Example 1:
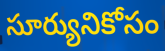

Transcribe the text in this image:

సూర్యునికోసం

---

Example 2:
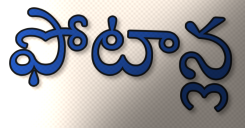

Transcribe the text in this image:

ఫోటాన్ల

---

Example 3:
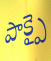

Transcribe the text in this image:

పాక్పై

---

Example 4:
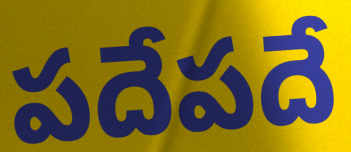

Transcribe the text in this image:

పదేపదే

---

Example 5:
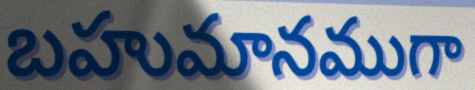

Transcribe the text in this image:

బహుమానముగా